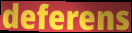
deferens